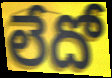
లేదో